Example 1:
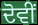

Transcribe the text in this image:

ਦੋਵੀਂ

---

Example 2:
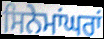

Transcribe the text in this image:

ਸਿਨੇਮਾਂਘਰਾਂ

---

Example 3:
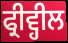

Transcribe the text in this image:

ਫ੍ਰੀਵ੍ਹੀਲ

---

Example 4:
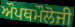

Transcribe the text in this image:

ਔਪਥਮੌਲੋਜੀ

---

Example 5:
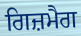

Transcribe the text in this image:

ਗਿਜ਼ਮੈਗ